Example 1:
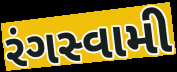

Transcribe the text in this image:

રંગસ્વામી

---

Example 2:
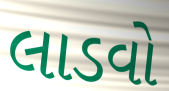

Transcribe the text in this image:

લાડવો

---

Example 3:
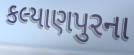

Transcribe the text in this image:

કલ્યાણપુરના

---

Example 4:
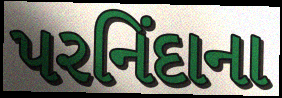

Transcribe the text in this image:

પરનિંદાના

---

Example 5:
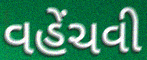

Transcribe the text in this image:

વહેંચવી